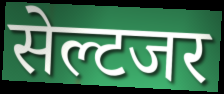
सेल्टजर